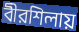
বীরশিলায়